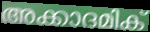
അക്കാദമിക്